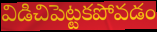
విడిచిపెట్టకపోవడం